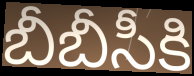
బీబీసీకి